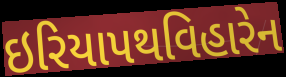
ઇરિયાપથવિહારેન